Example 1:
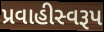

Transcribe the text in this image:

પ્રવાહીસ્વરૂપ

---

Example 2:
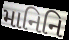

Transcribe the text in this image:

માનિનિ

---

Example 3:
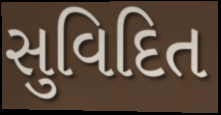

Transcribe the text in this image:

સુવિદિત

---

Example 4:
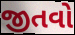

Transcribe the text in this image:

જીતવો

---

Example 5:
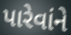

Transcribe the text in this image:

પારેવાંને